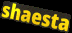
shaesta